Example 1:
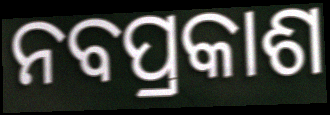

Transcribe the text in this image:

ନବପ୍ରକାଶ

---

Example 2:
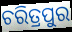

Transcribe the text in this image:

ଚରିତ୍ରପୁର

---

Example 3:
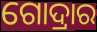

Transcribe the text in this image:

ଗୋଦ୍ରାର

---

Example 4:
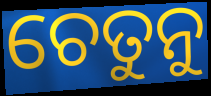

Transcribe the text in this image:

ଚେତୁନୁ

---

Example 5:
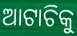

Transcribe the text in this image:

ଆଟାଚିକୁ